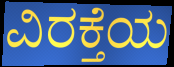
ವಿರಕ್ತೆಯ